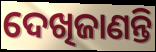
ଦେଖିଜାଣନ୍ତି